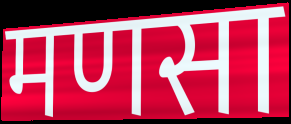
मणसा